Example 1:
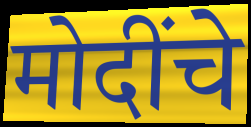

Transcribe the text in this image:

मोदींचे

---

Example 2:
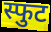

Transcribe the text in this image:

स्फुट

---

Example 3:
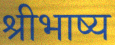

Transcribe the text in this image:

श्रीभाष्य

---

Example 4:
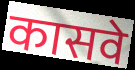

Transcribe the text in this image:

कासवे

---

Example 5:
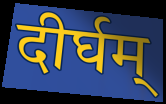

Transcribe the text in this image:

दीर्घम्